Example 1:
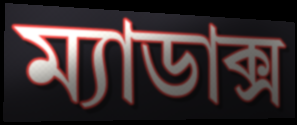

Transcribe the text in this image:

ম্যাডাক্স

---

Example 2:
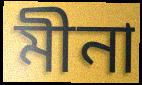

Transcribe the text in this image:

মীনা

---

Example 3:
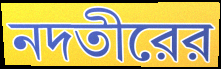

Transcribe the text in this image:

নদতীরের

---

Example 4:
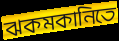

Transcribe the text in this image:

ঝকমকানিতে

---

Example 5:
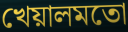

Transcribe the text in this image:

খেয়ালমতো